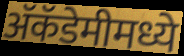
ॲकॅडेमीमध्ये